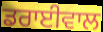
ਡਰਾਈਵਾਲ